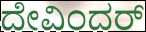
ದೇವಿಂದರ್